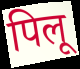
पिलू